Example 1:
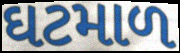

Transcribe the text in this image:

ઘટમાળ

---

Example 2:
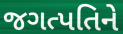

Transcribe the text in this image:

જગત્પતિને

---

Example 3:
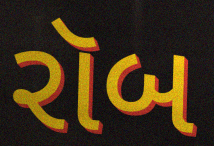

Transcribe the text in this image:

રૉબ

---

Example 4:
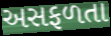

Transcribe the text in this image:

અસફળતા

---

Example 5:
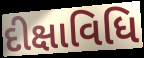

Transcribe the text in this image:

દીક્ષાવિધિ